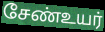
சேண்உயர்